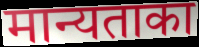
मान्यताका